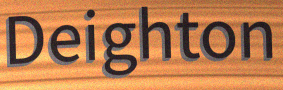
Deighton